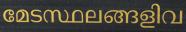
മേടസ്ഥലങ്ങളിവ